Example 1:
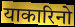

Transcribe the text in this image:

याकारिनो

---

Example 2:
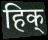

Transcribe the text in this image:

हिक्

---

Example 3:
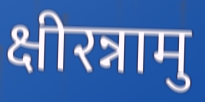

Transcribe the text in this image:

क्षीरन्नामु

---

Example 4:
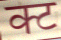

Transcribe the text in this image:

क्ट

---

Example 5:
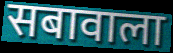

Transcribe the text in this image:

सबावाला